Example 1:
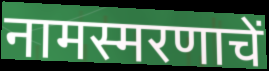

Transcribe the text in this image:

नामस्मरणाचें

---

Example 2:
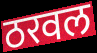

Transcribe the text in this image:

ठरवल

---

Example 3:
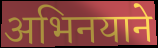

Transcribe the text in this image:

अभिनयाने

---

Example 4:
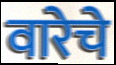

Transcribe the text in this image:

वारेचे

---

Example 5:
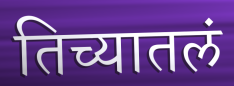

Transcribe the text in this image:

तिच्यातलं